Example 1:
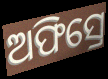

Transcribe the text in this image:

ଅଫିସ୍ରେ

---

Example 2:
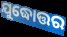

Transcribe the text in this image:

ଯୁଦ୍ଧୋତ୍ତର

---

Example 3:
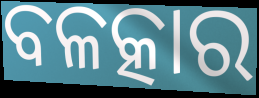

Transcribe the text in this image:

ବଳତ୍କାର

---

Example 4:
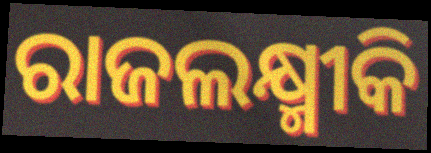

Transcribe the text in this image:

ରାଜଲକ୍ଷ୍ମୀକି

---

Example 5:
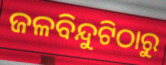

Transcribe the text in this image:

ଜଳବିନ୍ଦୁଟିଠାରୁ